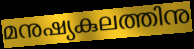
മനുഷ്യകുലത്തിനു